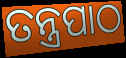
ତନ୍ତ୍ରପାଠ